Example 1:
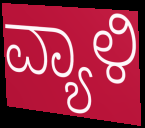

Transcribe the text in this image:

ವ್ಯಾಳಿ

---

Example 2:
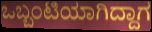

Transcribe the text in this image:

ಒಬ್ಬಂಟಿಯಾಗಿದ್ದಾಗ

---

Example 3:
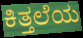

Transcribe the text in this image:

ಕಿತ್ತಲೆಯ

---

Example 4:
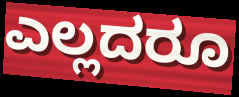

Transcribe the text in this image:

ಎಲ್ಲದರೂ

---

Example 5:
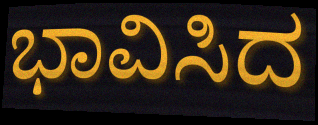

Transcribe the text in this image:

ಭಾವಿಸಿದ